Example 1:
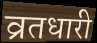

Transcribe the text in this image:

व्रतधारी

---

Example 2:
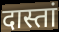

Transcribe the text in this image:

दास्तां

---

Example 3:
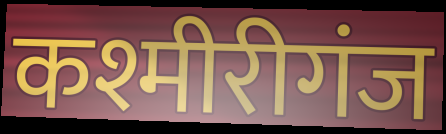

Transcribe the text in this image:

कश्मीरीगंज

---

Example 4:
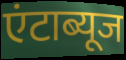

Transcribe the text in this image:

एंटाब्यूज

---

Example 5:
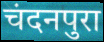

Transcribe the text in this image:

चंदनपुरा